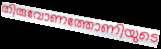
തിരുവോണത്തോണിയുടെ